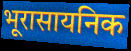
भूरासायनिक